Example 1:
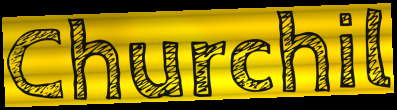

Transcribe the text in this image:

Churchil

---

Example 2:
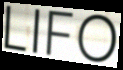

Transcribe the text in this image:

LIFO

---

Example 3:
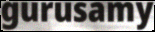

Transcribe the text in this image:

gurusamy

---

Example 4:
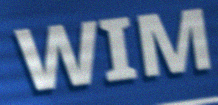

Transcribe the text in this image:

WIM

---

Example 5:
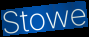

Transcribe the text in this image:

Stowe